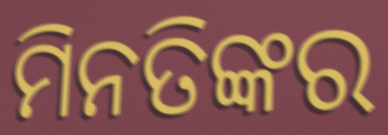
ମିନତିଙ୍କର